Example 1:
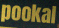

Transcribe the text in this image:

pookal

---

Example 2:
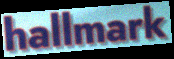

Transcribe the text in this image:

hallmark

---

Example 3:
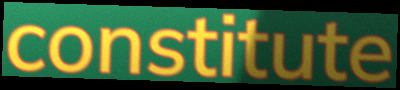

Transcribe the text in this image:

constitute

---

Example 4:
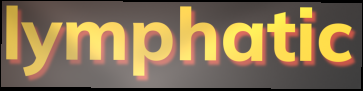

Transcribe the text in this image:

lymphatic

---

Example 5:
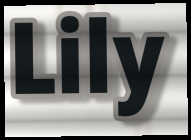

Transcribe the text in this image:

Lily